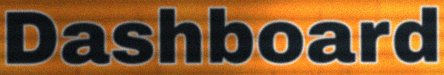
Dashboard